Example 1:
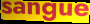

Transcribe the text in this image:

sangue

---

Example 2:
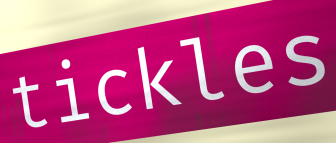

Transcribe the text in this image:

tickles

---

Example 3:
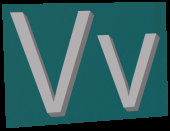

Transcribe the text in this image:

Vv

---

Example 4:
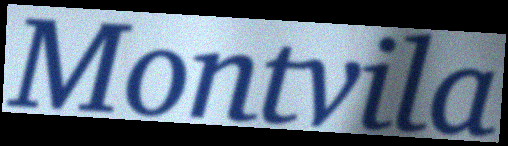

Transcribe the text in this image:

Montvila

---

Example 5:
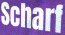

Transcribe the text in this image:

Scharf